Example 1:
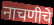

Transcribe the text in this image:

नाचणीचे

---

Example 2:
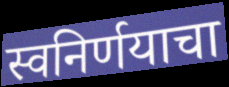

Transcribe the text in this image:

स्वनिर्णयाचा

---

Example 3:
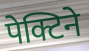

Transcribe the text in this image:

पेक्टिने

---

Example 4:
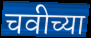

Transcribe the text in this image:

चवीच्या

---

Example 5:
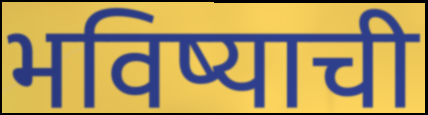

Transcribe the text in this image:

भविष्याची